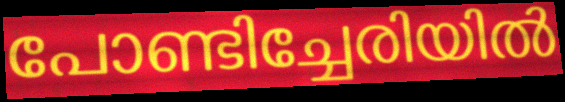
പോണ്ടിച്ചേരിയിൽ